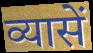
व्यासें